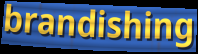
brandishing